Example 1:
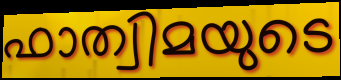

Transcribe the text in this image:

ഫാത്വിമയുടെ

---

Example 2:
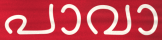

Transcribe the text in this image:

പാവാ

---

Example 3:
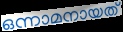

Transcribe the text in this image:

ഒന്നാമനായത്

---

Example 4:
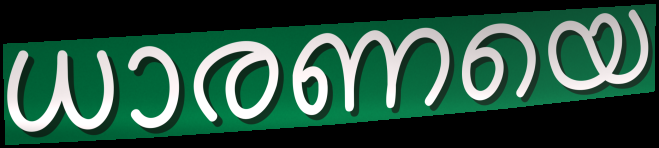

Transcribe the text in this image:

ധാരണയെ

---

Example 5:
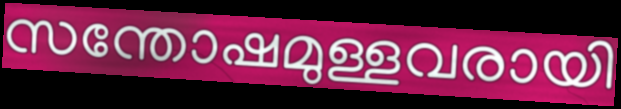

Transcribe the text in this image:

സന്തോഷമുള്ളവരായി